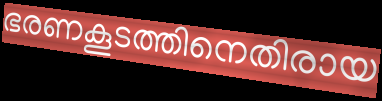
ഭരണകൂടത്തിനെതിരായ